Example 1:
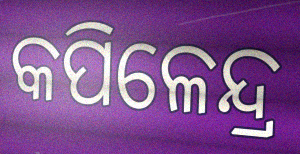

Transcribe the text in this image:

କପିଳେନ୍ଦ୍ର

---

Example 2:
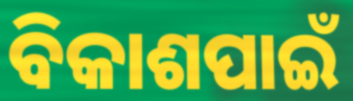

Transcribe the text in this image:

ବିକାଶପାଇଁ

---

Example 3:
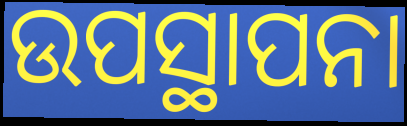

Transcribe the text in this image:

ଉପସ୍ଥାପନା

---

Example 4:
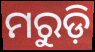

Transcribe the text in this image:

ମରୁଡ଼ି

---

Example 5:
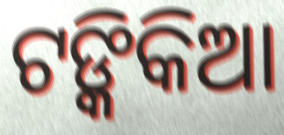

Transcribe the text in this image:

ଟଙ୍କିକିଆ